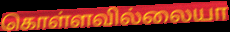
கொள்ளவில்லையா